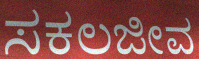
ಸಕಲಜೀವ